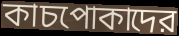
কাচপোকাদের